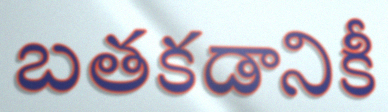
బతకడానికీ